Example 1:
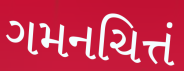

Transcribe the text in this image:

ગમનચિત્તં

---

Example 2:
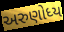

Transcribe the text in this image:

અરુણોધ્ય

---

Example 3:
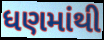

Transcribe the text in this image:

ધણમાંથી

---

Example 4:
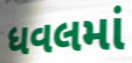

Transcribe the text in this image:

ધવલમાં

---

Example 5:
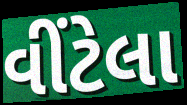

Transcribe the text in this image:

વીંટેલા